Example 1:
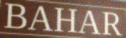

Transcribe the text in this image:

BAHAR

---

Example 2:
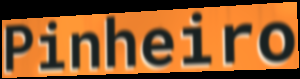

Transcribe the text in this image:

Pinheiro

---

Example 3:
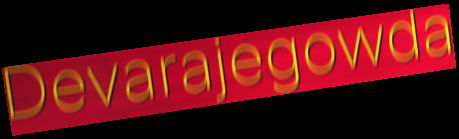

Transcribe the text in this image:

Devarajegowda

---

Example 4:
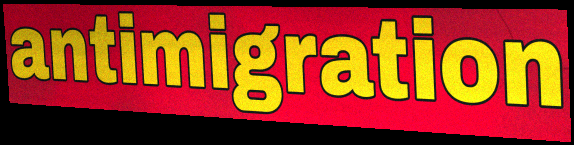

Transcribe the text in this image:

antimigration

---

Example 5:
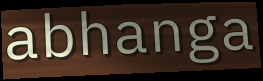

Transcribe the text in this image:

abhanga